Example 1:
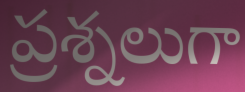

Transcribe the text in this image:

ప్రశ్నలుగా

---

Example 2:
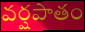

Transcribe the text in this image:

వర్షపాతం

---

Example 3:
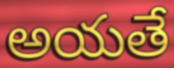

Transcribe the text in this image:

అయతే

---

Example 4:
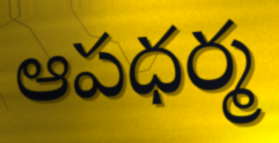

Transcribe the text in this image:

ఆపధర్మ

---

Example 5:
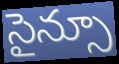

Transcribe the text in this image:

సైన్సూ